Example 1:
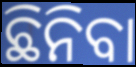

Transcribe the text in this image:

ଛିନିବା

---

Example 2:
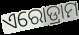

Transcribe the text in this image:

ଏରୋଡ୍ରାମ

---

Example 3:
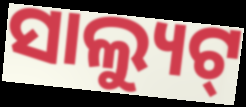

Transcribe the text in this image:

ସାଲ୍ୟୁଟ୍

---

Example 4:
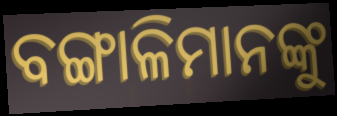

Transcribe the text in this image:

ବଙ୍ଗାଳିମାନଙ୍କୁ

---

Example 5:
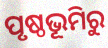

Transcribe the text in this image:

ପୃଷ୍ଠଭୂମିରୁ